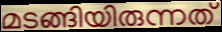
മടങ്ങിയിരുന്നത്